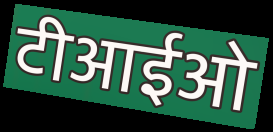
टीआईओ